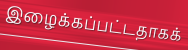
இழைக்கப்பட்டதாகக்